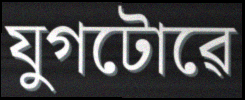
যুগটোৱে